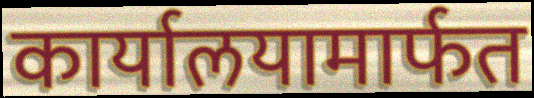
कार्यालयामार्फत